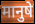
मानुषे